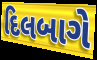
દિલબાગે